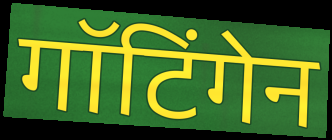
गॉटिंगेन